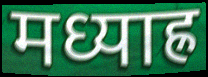
मध्याह्र